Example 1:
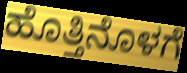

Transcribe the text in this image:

ಹೊತ್ತಿನೊಳಗೆ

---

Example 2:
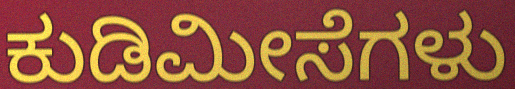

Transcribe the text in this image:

ಕುಡಿಮೀಸೆಗಳು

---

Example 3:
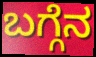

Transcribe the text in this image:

ಬಗ್ಗೆನ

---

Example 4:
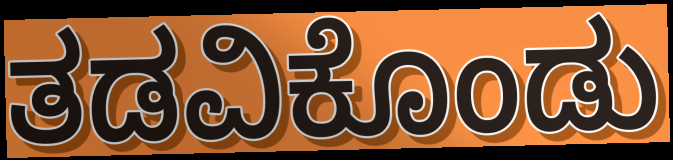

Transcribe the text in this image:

ತಡವಿಕೊಂಡು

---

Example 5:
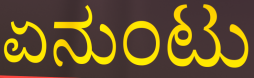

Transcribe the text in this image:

ಏನುಂಟು